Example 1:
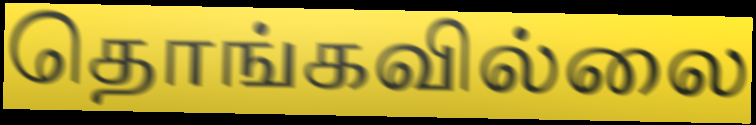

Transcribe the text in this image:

தொங்கவில்லை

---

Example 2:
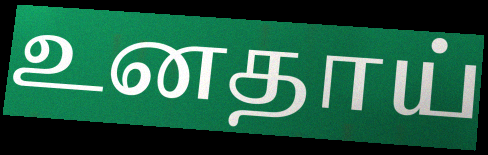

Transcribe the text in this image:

உனதாய்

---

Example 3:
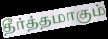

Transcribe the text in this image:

தீர்த்தமாகும்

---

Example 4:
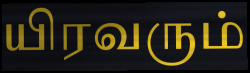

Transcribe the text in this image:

யிரவரும்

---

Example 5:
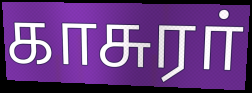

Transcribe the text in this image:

காசுரர்